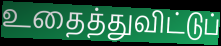
உதைத்துவிட்டுப்